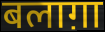
बलाग़ा